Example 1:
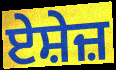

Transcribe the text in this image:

ਏਸ਼ੇਜ਼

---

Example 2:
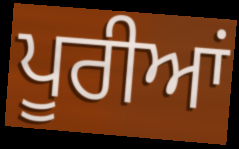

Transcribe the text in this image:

ਪੂਰੀਆਂ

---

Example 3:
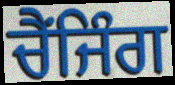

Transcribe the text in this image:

ਚੈਂਜਿੰਗ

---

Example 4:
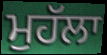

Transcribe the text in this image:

ਮੁਹੱਲਾ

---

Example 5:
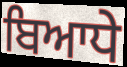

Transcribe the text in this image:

ਬਿਆਧੇ